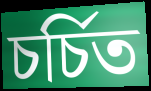
চৰ্চিত